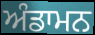
ਅੰਡਾਮਨ